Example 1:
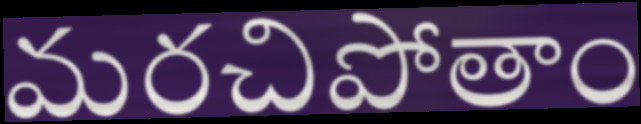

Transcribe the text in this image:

మరచిపోతాం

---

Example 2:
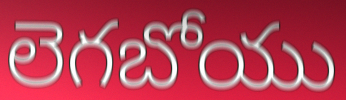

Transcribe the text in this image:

లెగబోయు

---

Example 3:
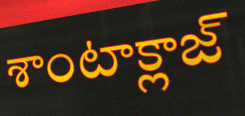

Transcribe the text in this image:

శాంటాక్లాజ్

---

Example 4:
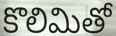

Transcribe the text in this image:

కొలిమితో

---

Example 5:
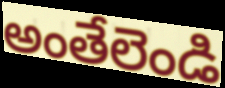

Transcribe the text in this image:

అంతేలెండి